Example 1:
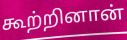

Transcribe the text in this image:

கூற்றினான்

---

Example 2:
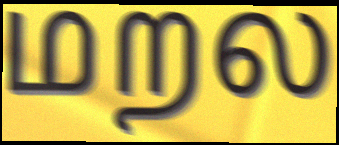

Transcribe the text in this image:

மறல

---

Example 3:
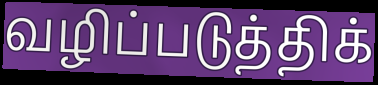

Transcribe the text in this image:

வழிப்படுத்திக்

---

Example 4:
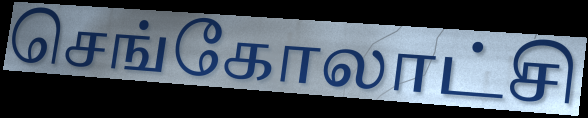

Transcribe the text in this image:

செங்கோலாட்சி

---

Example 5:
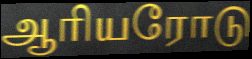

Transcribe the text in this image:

ஆரியரோடு